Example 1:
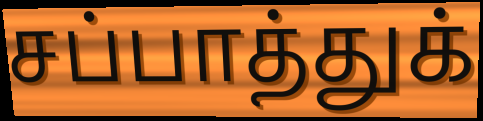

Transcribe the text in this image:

சப்பாத்துக்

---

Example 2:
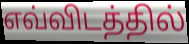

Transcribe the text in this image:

எவ்விடத்தில்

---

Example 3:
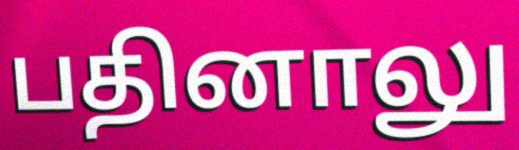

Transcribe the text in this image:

பதினாலு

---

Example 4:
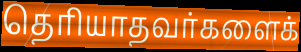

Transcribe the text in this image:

தெரியாதவர்களைக்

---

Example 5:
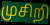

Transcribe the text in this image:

முசிறி